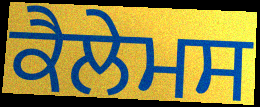
ਕੈਲੇਮਸ